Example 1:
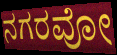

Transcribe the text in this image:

ನಗರವೋ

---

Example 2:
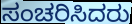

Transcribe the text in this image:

ಸಂಚರಿಸಿದರು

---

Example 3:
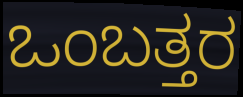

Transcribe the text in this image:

ಒಂಬತ್ತರ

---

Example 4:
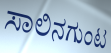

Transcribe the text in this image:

ಸಾಲಿನಗುಂಟ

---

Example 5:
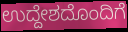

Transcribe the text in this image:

ಉದ್ದೇಶದೊಂದಿಗೆ